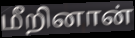
மீறினான்